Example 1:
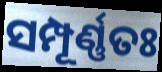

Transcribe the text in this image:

ସମ୍ପୂର୍ଣ୍ଣତଃ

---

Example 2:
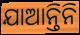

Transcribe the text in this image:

ଯାଆନ୍ତିନି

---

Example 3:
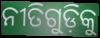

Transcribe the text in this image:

ନୀତିଗୁଡ଼ିକୁ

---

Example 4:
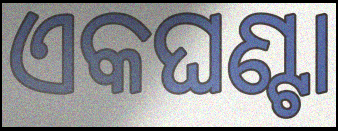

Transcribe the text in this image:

ଏକଘଣ୍ଟା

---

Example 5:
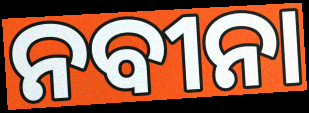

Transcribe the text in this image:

ନବୀନା